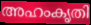
അഹംകൃതി